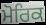
ਮੋਰਿਕ